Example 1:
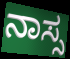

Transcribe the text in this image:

ನಾಸ್ಸ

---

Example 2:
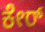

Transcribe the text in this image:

ಕೇರ್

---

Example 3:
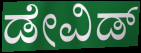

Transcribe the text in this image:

ಡೇವಿಡ್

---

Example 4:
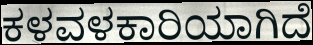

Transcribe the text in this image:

ಕಳವಳಕಾರಿಯಾಗಿದೆ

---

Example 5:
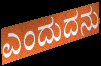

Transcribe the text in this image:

ಎಂದುದನು